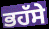
ਭਹੱਸੇ